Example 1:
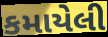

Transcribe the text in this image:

કમાયેલી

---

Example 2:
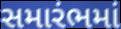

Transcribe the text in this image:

સમારંભમાં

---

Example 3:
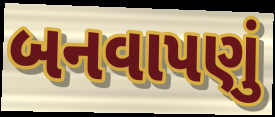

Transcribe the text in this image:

બનવાપણું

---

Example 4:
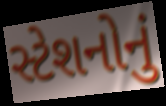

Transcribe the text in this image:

સ્ટેશનોનું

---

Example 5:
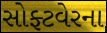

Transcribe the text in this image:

સોફ્ટવેરના